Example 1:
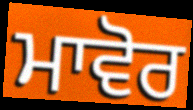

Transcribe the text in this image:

ਮਾਵੋਰ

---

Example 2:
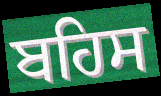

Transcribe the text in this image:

ਬਹਿਸ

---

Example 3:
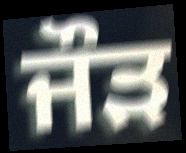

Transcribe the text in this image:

ਜੌੜ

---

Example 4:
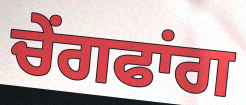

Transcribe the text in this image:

ਚੇਂਗਫਾਂਗ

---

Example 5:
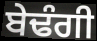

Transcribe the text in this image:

ਬੇਢੰਗੀ